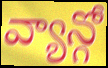
వ్యాన్గో